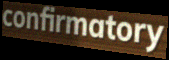
confirmatory